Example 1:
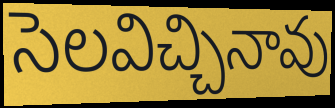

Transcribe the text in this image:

సెలవిచ్చినావు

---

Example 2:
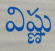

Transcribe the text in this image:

విష్ణు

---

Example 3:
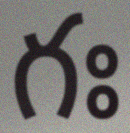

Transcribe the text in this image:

గః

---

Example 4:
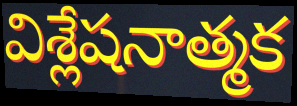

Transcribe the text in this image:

విశ్లేషనాత్మక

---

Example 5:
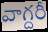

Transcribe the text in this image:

వాగ్దరీ